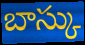
బాస్కు